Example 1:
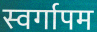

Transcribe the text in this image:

स्वर्गापम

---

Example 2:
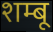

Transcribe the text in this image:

शम्बू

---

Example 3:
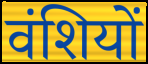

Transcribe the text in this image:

वंशियों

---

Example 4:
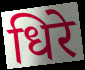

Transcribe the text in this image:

धिरे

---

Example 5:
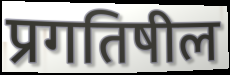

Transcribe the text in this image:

प्रगतिषील